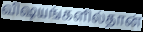
விஷயங்களில்தான்